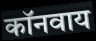
कॉनवाय